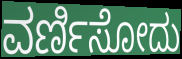
ವರ್ಣಿಸೋದು